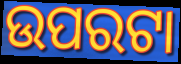
ଉପରଟା